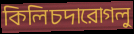
কিলিচদারোগলু